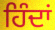
ਹਿੰਦਾਂ